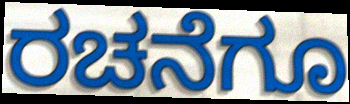
ರಚನೆಗೂ